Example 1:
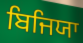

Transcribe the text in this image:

ਬਿਜਿਯਾ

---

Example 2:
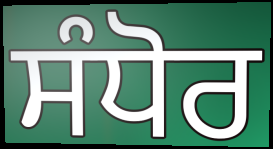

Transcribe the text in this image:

ਸੰਧੋਰ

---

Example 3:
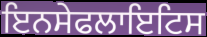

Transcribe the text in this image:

ਇਨਸੇਫਲਾਇਟਿਸ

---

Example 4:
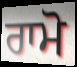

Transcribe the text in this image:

ਰਾਮੋ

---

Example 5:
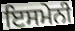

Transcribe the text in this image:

ਇਸਮੇਨੀ